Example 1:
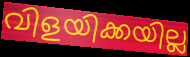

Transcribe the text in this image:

വിളയിക്കയില്ല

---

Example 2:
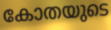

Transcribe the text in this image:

കോതയുടെ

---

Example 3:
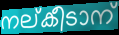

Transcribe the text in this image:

നല്കീടാന്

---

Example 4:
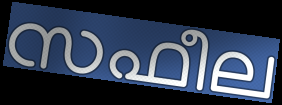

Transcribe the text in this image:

സഫീല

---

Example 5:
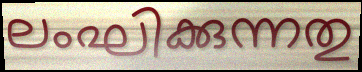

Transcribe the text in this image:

ലംഘിക്കുന്നതു